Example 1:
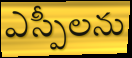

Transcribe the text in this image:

ఎస్పీలను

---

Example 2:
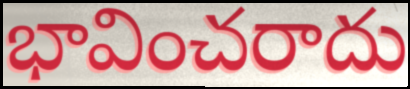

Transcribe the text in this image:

భావించరాదు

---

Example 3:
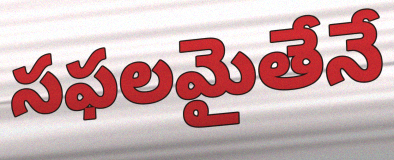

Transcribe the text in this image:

సఫలమైతేనే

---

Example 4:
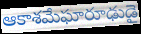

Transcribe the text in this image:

ఆకాశమేఘారూఢుడై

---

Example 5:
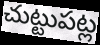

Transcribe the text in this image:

చుట్టుపట్ల